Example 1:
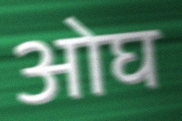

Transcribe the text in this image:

ओघ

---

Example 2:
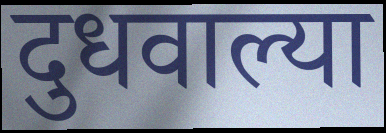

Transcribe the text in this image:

दुधवाल्या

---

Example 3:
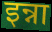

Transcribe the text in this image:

इन्ना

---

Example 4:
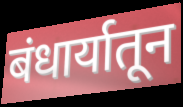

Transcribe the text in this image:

बंधार्यातून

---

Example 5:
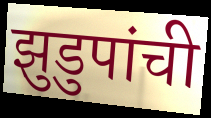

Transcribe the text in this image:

झुडुपांची